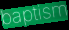
baptism